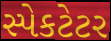
સ્પેકટેટર